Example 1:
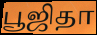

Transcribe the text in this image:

பூஜிதா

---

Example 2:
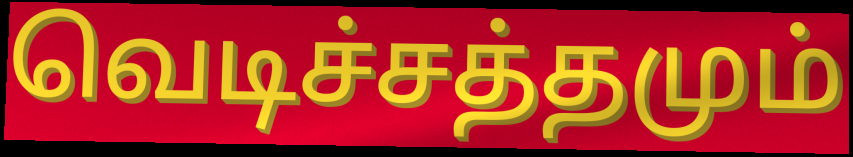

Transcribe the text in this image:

வெடிச்சத்தமும்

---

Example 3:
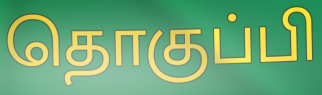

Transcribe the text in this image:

தொகுப்பி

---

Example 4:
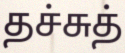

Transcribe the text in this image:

தச்சுத்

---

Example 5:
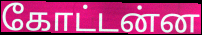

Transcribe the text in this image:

கோட்டன்ன